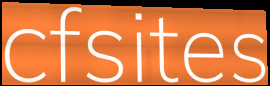
cfsites